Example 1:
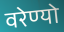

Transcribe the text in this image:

वरेण्यो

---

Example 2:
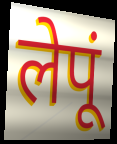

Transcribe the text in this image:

लेपूं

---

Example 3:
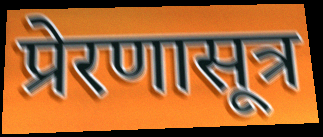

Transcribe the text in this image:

प्रेरणासूत्र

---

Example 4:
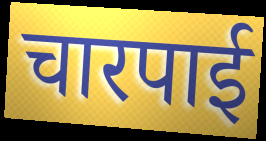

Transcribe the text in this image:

चारपाई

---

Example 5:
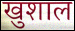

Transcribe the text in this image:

खुशाल